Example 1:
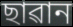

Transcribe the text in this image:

ছাৱান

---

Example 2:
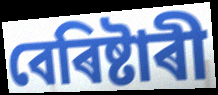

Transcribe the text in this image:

বেৰিষ্টাৰী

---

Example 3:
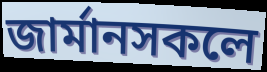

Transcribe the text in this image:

জাৰ্মানসকলে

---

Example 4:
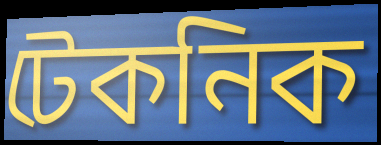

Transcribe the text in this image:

টেকনিক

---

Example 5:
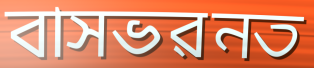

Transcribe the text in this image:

বাসভৱনত